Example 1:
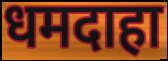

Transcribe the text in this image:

धमदाहा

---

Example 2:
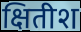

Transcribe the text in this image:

क्षितीश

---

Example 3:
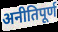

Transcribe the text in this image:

अनीतिपूर्ण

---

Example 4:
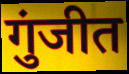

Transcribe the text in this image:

गुंजीत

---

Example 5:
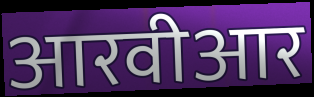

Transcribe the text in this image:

आरवीआर